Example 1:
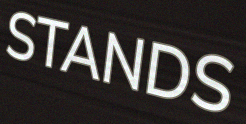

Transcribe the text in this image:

STANDS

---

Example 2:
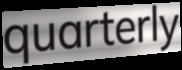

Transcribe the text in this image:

quarterly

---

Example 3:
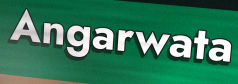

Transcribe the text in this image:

Angarwata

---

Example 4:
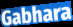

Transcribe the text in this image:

Gabhara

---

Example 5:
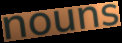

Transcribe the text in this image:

nouns